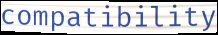
compatibility